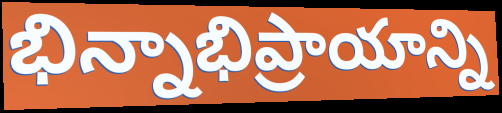
భిన్నాభిప్రాయాన్ని